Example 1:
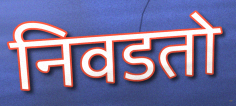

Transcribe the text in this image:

निवडतो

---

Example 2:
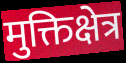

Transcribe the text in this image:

मुक्तिक्षेत्र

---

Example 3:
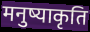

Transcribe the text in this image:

मनुष्याकृति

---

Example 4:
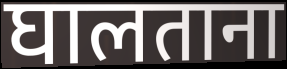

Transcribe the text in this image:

घालताना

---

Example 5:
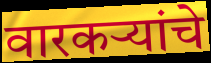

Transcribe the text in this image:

वारकऱ्यांचे